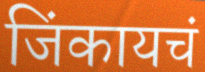
जिंकायचं